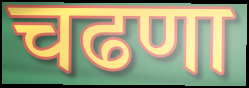
चढणा